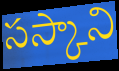
సస్కాని